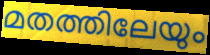
മതത്തിലേയും